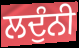
ਲਦੁੰਨੀ